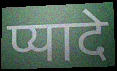
प्यादे